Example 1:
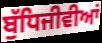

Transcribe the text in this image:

ਬੁੱਧਿਜੀਵੀਆਂ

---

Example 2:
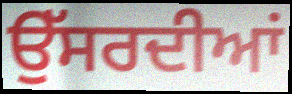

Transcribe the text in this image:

ਉੱਸਰਦੀਆਂ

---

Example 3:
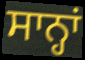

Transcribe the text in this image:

ਸਾਨ੍ਹਾਂ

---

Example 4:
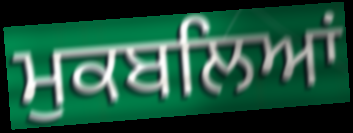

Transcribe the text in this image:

ਮੁਕਬਲਿਆਂ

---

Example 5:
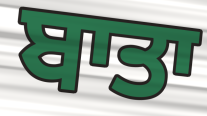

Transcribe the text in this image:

ਬਾਤਾ